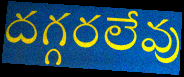
దగ్గరలేవు